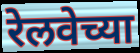
रेलवेच्या